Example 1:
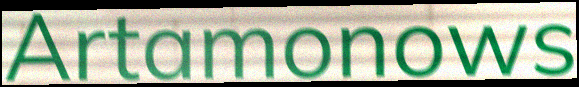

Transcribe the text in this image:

Artamonows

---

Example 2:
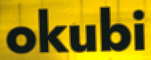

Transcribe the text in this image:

okubi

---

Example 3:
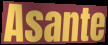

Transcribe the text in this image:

Asante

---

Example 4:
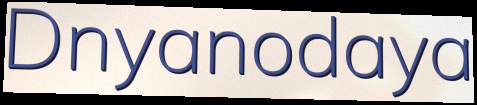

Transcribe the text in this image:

Dnyanodaya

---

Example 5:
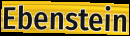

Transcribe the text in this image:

Ebenstein